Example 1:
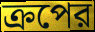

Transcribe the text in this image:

ক্রপের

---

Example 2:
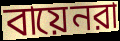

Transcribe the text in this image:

বায়েনরা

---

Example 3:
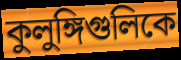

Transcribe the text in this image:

কুলুঙ্গিগুলিকে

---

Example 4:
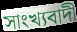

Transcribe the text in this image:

সাংখ্যবাদী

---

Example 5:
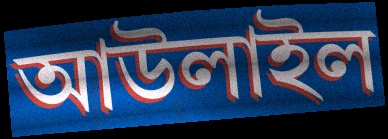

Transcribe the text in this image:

আউলাইল